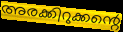
അരക്കിറുക്കന്റെ